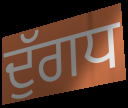
ਦੁੱਗਧ